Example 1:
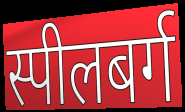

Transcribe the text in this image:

स्पीलबर्ग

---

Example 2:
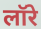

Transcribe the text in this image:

लॉरे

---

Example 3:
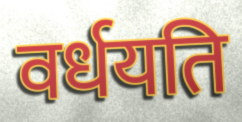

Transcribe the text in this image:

वर्धयति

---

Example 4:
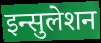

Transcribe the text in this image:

इन्सुलेशन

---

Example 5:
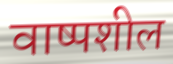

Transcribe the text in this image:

वाष्पशील